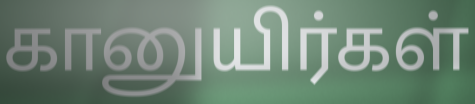
கானுயிர்கள்